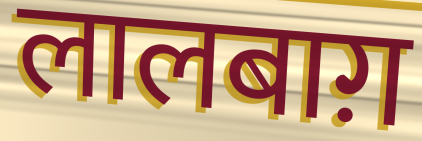
लालबाग़